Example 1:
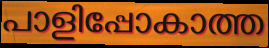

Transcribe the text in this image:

പാളിപ്പോകാത്ത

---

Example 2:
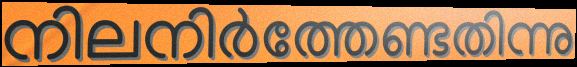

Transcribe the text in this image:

നിലനിർത്തേണ്ടതിന്നു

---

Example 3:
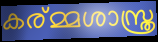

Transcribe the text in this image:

കര്മ്മശാസ്ത്ര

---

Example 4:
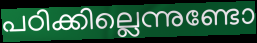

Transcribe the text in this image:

പഠിക്കില്ലെന്നുണ്ടോ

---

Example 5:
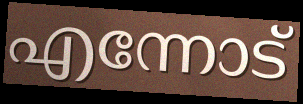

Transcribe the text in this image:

എന്നോട്